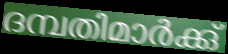
ദമ്പതിമാർക്കു്